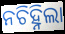
ନଚିହ୍ନିଲା